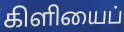
கிளியைப்